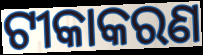
ଟୀକାକରଣ